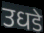
उधडे